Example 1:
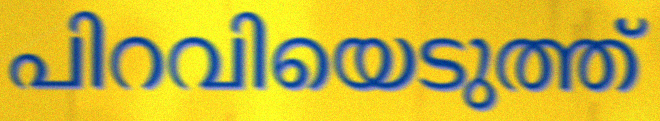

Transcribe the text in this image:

പിറവിയെടുത്ത്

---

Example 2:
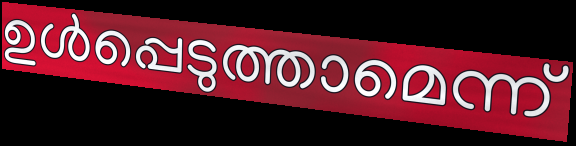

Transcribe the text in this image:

ഉൾപ്പെടുത്താമെന്ന്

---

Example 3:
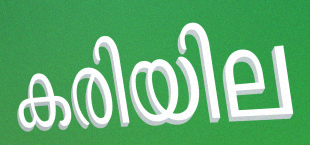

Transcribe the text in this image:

കരിയില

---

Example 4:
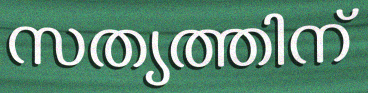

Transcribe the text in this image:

സത്യത്തിന്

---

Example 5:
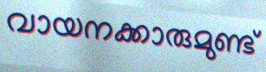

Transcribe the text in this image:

വായനക്കാരുമുണ്ട്